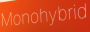
Monohybrid